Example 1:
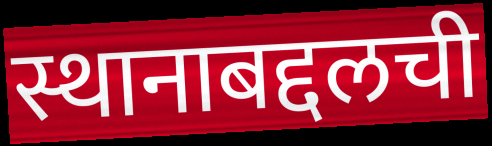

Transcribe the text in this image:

स्थानाबद्दलची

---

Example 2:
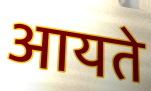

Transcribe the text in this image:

आयते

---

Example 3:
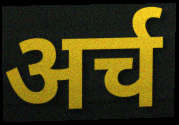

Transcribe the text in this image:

अर्च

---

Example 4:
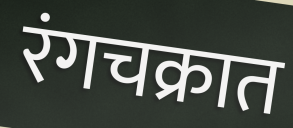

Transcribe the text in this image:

रंगचक्रात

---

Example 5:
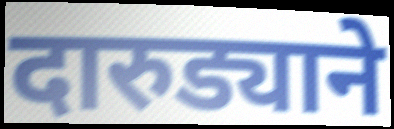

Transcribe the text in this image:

दारुड्याने